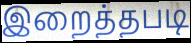
இறைத்தபடி